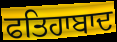
ਫਤਿਹਾਬਾਦ